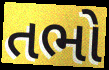
તભો